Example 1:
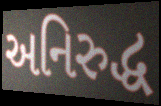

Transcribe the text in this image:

અનિરુદ્ધ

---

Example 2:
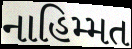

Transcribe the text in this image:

નાહિમ્મત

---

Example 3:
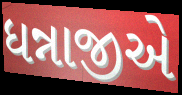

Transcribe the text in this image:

ધન્નાજીએ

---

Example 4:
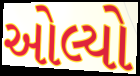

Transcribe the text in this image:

ઓલ્યો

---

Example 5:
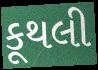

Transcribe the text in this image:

કૂથલી